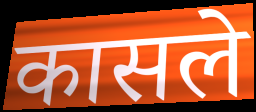
कासले